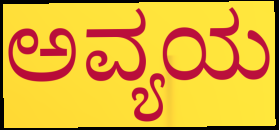
ಅವ್ಯಯ